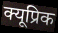
क्यूप्रिक